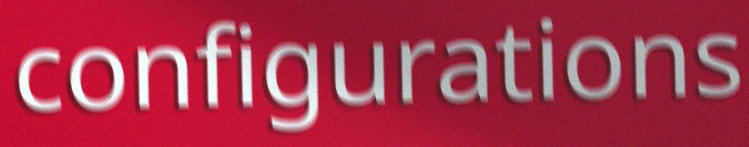
configurations